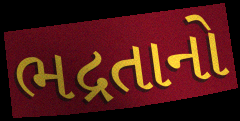
ભદ્રતાનો